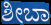
ಶೀಬಾ